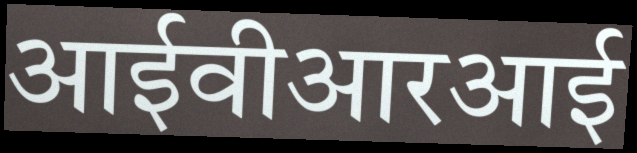
आईवीआरआई